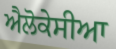
ਐਲੋਕੇਸੀਆ